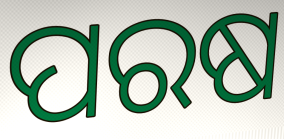
ପରଷ